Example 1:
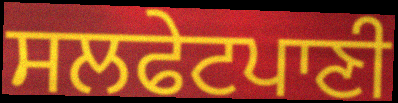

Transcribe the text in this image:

ਸਲਫੇਟਪਾਣੀ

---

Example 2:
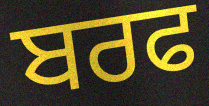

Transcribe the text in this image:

ਬਰਫ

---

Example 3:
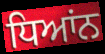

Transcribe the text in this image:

ਧਿਆਂਨ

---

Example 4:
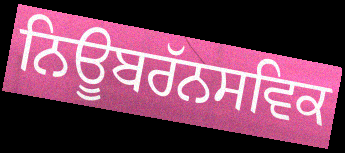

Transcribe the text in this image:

ਨਿਊਬਰੱਨਸਵਿਕ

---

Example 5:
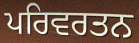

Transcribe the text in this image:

ਪਰਿਵਰਤਨ